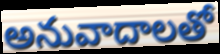
అనువాదాలతో